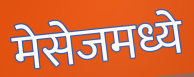
मेसेजमध्ये